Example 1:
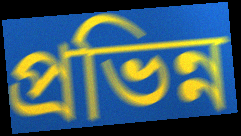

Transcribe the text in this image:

প্রভিন্ন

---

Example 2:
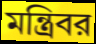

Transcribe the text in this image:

মন্ত্রিবর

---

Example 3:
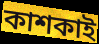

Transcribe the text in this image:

কাশকাই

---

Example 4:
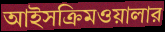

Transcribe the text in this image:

আইসক্রিমওয়ালার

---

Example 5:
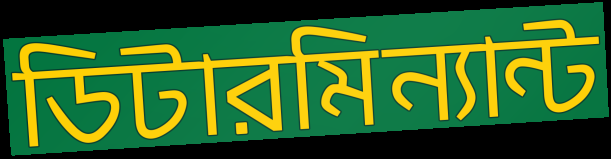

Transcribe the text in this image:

ডিটারমিন্যান্ট